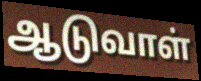
ஆடுவாள்